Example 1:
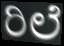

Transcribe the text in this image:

ರಿಲೆ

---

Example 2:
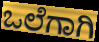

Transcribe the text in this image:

ಒಲೆಗಾಗಿ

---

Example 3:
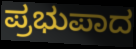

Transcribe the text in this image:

ಪ್ರಭುಪಾದ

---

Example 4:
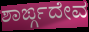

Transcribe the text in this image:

ಶಾರ್ಙ್ಗದೇವ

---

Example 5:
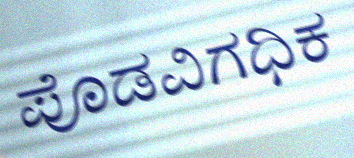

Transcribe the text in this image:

ಪೊಡವಿಗಧಿಕ